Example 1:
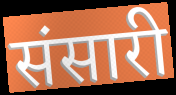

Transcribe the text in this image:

संसारी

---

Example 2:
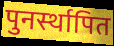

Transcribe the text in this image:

पुनर्स्थापित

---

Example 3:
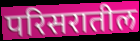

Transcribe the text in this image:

परिसरातील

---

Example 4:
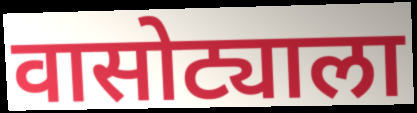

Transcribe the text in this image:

वासोट्याला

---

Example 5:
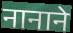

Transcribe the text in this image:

नानाने